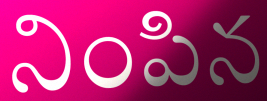
నింపిన